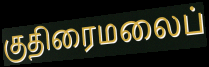
குதிரைமலைப்